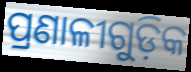
ପ୍ରଣାଳୀଗୁଡ଼ିକ